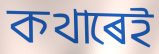
কথাৰেই